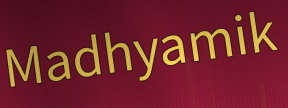
Madhyamik